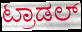
ಟ್ರಾಡಲ್